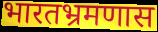
भारतभ्रमणास